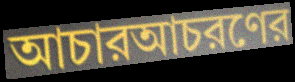
আচারআচরণের